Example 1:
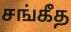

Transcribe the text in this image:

சங்கீத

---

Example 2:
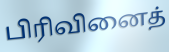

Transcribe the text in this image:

பிரிவினைத்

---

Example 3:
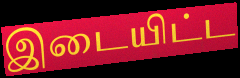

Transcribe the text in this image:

இடையிட்ட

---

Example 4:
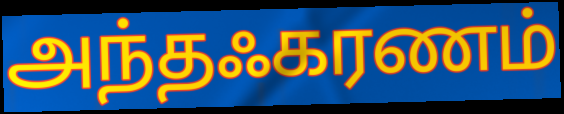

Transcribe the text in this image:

அந்தஃகரணம்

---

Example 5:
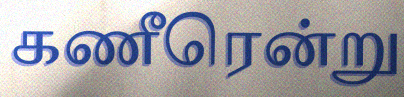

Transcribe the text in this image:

கணீரென்று